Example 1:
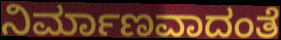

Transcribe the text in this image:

ನಿರ್ಮಾಣವಾದಂತೆ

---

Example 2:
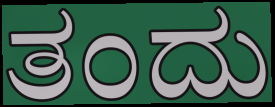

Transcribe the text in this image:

ತಂದು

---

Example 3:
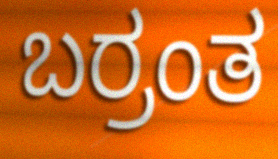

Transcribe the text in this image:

ಬರ್ರಂತ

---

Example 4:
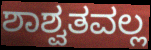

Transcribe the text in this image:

ಶಾಶ್ವತವಲ್ಲ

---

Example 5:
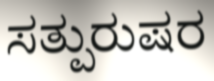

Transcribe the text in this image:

ಸತ್ಪುರುಷರ